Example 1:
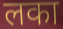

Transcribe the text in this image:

लका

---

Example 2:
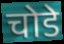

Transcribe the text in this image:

चोडे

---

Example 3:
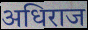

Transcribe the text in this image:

अधिराज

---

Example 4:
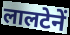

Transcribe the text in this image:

लालटेनें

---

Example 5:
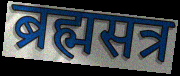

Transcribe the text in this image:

ब्रह्मसत्र